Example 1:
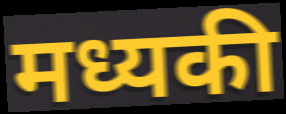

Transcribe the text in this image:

मध्यकी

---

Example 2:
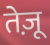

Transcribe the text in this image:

तेज़ू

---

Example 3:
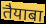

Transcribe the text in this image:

तैयाबा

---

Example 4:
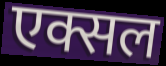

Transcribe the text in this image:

एक्सल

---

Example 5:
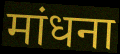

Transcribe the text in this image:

मांधना